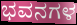
ಭವನಗಳ